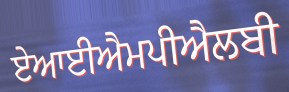
ਏਆਈਐਮਪੀਐਲਬੀ